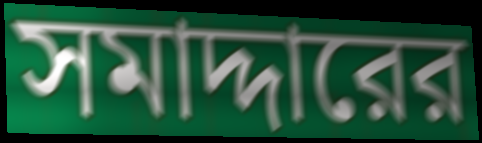
সমাদ্দারের